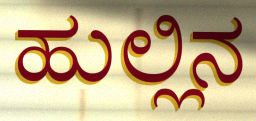
ಹುಲ್ಲಿನ